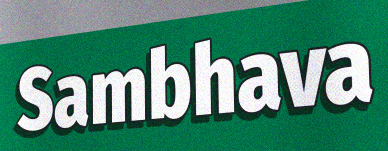
Sambhava